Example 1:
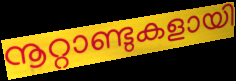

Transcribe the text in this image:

നൂറ്റാണ്ടുകളായി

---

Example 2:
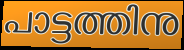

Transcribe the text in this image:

പാട്ടത്തിനു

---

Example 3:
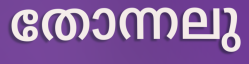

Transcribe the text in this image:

തോന്നലു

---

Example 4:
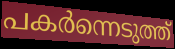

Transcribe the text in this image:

പകർന്നെടുത്ത്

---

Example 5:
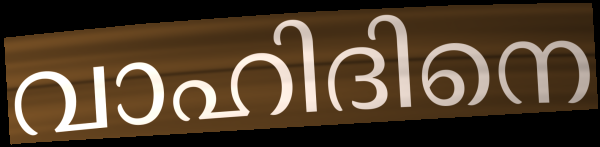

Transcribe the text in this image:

വാഹിദിനെ